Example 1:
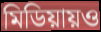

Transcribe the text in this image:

মিডিয়ায়ও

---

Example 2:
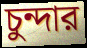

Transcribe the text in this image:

চুন্দার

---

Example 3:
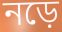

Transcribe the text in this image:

নড়ে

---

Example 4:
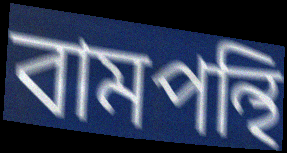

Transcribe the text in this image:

বামপন্থি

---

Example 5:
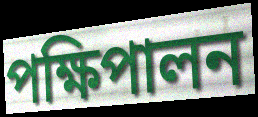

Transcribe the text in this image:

পক্ষিপালন